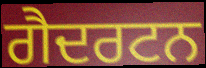
ਗੈਦਰਟਨ